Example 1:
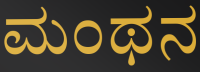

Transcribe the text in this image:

ಮಂಥನ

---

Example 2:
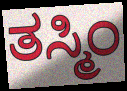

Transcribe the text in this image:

ತಸ್ಮಿಂ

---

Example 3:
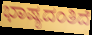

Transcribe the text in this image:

ಭಾಷ್ಯದಂತಿದೆ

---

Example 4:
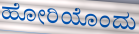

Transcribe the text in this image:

ಹೋರಿಯೊಂದು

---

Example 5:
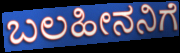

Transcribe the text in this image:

ಬಲಹೀನನಿಗೆ